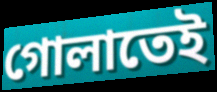
গোলাতেই